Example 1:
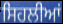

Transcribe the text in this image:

ਸਿਹਲੀਆਂ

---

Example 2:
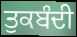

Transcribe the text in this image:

ਤੁਕਬੰਦੀ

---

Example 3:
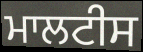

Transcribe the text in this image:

ਮਾਲਟੀਸ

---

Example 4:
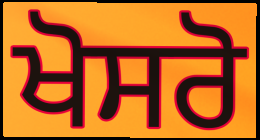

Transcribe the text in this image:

ਖੋਸਰੋ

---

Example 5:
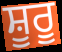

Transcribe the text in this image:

ਸ਼ੂਰੂ